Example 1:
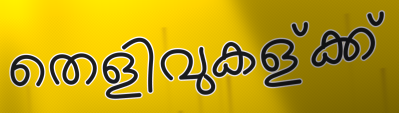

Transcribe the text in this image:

തെളിവുകള്ക്ക്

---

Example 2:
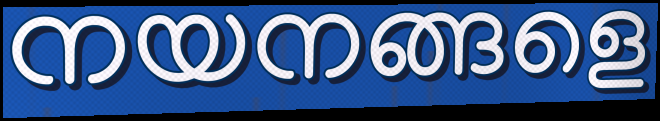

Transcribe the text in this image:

നയനങ്ങളെ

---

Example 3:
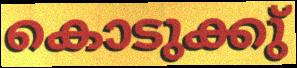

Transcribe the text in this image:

കൊടുക്കു്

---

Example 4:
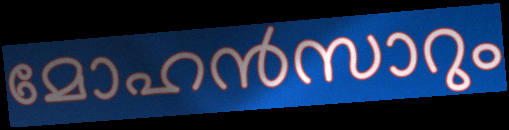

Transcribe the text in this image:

മോഹൻസാറും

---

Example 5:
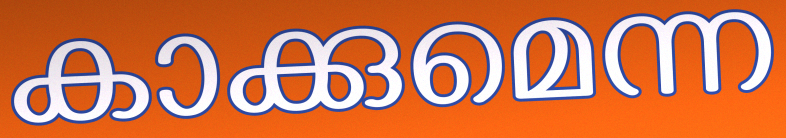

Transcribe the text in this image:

കാക്കുമെന്ന